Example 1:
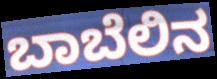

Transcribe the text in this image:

ಬಾಬೆಲಿನ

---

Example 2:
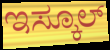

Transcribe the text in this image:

ಇಸ್ಕೂಲ್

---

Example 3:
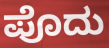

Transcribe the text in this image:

ಪೊದು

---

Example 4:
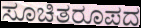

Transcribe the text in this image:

ಸೂಚಿತರೂಪದ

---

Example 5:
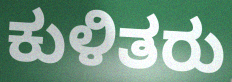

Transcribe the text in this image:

ಕುಳಿತರು